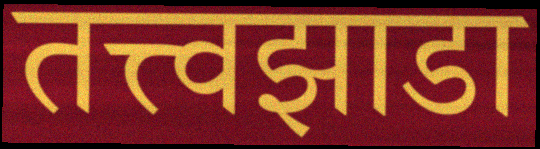
तत्त्वझाडा